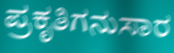
ಪ್ರಕೃತಿಗನುಸಾರ